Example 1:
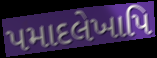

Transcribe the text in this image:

પમાદલેખાપિ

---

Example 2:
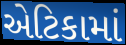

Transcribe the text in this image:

એટિકામાં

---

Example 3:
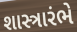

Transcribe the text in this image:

શાસ્ત્રારંભે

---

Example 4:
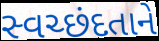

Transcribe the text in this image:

સ્વચ્છંદતાને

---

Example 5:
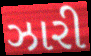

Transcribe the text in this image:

ઝારી